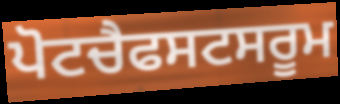
ਪੋਟਚੈਫਸਟਸਰੂਮ